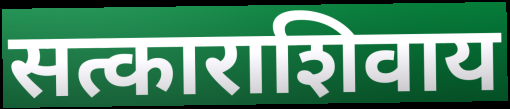
सत्काराशिवाय